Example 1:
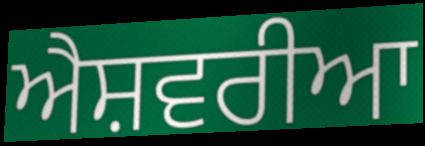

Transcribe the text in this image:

ਐਸ਼ਵਰੀਆ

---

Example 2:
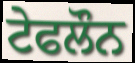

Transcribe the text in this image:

ਟੇਫਲੌਨ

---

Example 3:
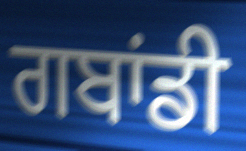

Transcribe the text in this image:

ਗਬਾਂਡੀ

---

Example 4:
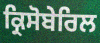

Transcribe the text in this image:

ਕ੍ਰਿਸੋਬੇਰਿਲ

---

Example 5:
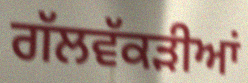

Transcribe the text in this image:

ਗੱਲਵੱਕੜੀਆਂ